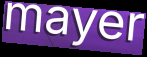
mayer